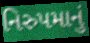
નિરુપમાનું